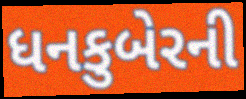
ધનકુબેરની